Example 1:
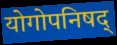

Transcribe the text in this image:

योगोपनिषद्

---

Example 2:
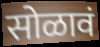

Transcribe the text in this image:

सोळावं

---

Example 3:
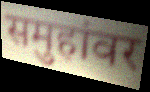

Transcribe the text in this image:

समुहांवर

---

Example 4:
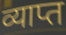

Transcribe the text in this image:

व्याप्त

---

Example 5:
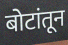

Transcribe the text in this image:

बोटांतून